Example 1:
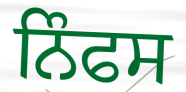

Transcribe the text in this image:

ਨਿੰਫਸ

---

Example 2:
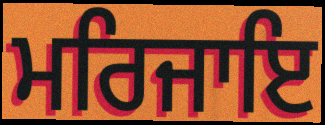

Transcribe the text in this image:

ਮਰਿਜਾਇ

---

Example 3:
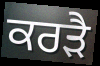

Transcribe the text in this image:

ਕਰੜੈ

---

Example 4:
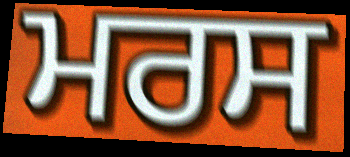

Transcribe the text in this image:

ਮਰਸ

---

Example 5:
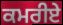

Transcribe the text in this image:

ਕਮਰੀਏ